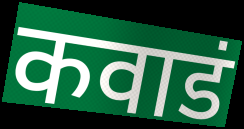
कवाडं